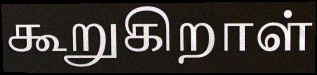
கூறுகிறாள்